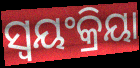
ସ୍ବୟଂକ୍ରିୟା